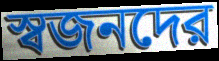
স্বজনদের